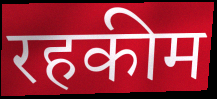
रहकीम